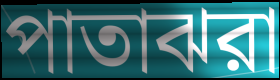
পাতাঝরা